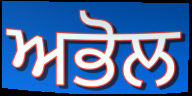
ਅਭੋਲ